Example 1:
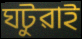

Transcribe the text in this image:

ঘটুৱাই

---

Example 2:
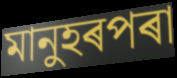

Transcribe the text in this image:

মানুহৰপৰা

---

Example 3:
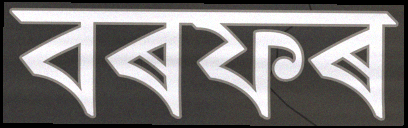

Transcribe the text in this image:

বৰফৰ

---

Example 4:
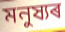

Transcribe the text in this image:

মনুষ্যৰ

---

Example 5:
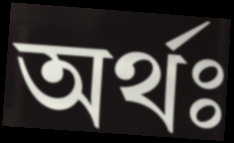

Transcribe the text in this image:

অৰ্থঃ